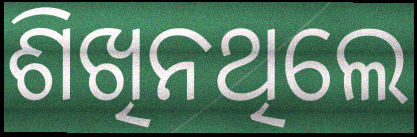
ଶିଖିନଥିଲେ